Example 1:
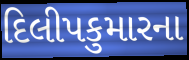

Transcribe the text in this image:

દિલીપકુમારના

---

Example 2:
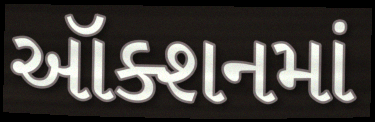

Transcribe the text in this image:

ઑક્શનમાં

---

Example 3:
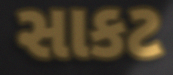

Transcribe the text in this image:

સાકટ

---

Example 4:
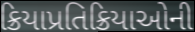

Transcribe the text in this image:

ક્રિયાપ્રતિક્રિયાઓની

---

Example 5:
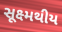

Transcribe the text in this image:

સૂક્ષ્મથીય